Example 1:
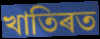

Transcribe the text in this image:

খাতিৰত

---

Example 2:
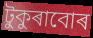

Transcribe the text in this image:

টুকুৰাবোৰ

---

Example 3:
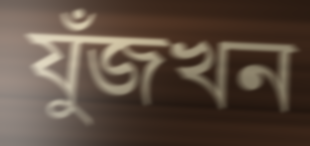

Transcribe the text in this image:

যুঁজখন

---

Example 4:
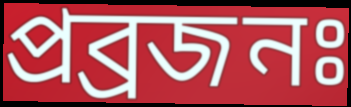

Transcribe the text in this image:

প্ৰব্ৰজনঃ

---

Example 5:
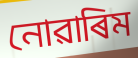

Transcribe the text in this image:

নোৱাৰিম